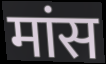
मांस